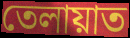
তেলায়াত